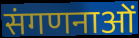
संगणनाओं